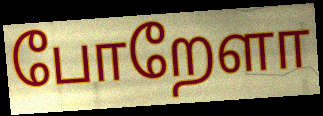
போறேளா